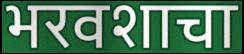
भरवशाचा